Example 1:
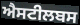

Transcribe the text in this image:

ਐਸਟੀਲਬਸ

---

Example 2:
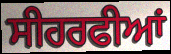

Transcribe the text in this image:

ਸੀਹਰਫੀਆਂ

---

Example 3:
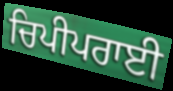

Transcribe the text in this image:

ਚਿਪੀਪਰਾਈ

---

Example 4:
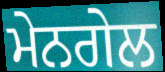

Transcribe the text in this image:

ਮੇਨਗੇਲ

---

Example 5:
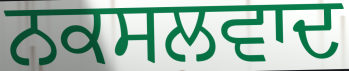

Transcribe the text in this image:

ਨਕਸਲਵਾਦ